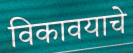
विकावयाचे